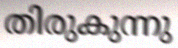
തിരുകുന്നു